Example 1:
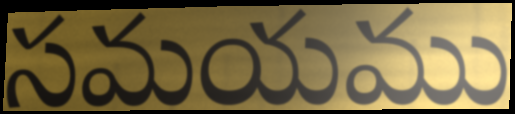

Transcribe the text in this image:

సమయము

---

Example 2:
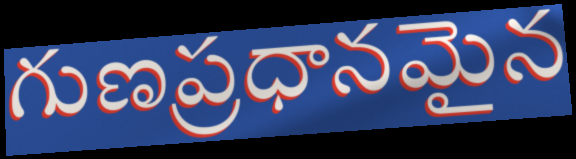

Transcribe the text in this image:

గుణప్రధానమైన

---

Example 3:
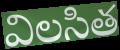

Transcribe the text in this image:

విలసిత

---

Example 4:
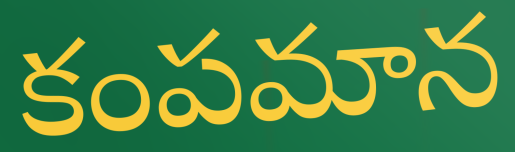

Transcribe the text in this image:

కంపమాన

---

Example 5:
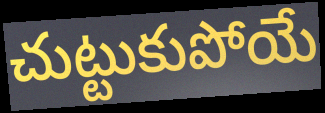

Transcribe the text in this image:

చుట్టుకుపోయే